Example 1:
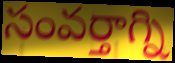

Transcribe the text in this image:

సంవర్తాగ్ని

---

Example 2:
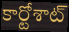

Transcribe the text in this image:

కార్టోశాట్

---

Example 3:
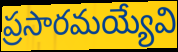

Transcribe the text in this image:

ప్రసారమయ్యేవి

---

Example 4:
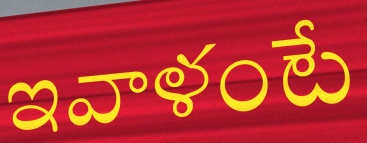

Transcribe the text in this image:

ఇవాళంటే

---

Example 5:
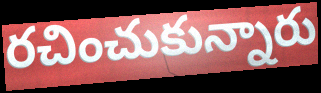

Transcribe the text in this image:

రచించుకున్నారు